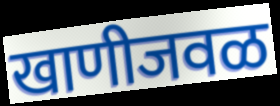
खाणीजवळ